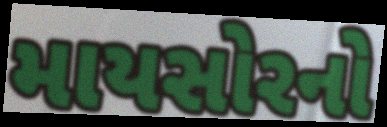
માયસોરનો